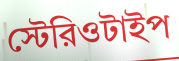
স্টেরিওটাইপ